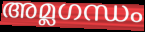
അമ്ലഗന്ധം